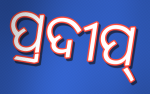
ପ୍ରଦୀପ୍